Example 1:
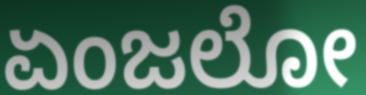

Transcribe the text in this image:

ಏಂಜಲೋ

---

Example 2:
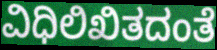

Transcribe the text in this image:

ವಿಧಿಲಿಖಿತದಂತೆ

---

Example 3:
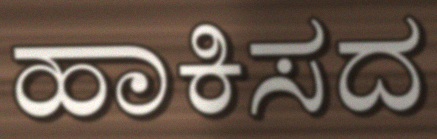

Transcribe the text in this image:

ಹಾಕಿಸದ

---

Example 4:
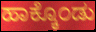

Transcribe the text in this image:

ಹಾಕ್ಕೊಂಡು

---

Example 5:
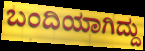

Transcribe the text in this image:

ಬಂದಿಯಾಗಿದ್ದು